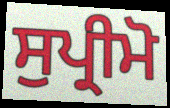
ਸੁਪ੍ਰੀਮੋ